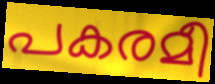
പകരമീ